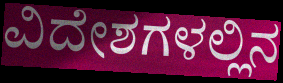
ವಿದೇಶಗಳಲ್ಲಿನ